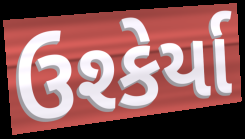
ઉશ્કેર્યા